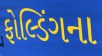
ફોલ્ડિંગના